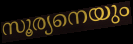
സൂര്യനെയും